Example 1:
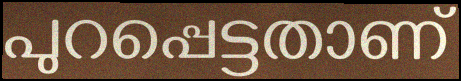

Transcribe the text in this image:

പുറപ്പെട്ടതാണ്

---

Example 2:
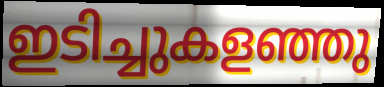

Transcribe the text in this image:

ഇടിച്ചുകളഞ്ഞു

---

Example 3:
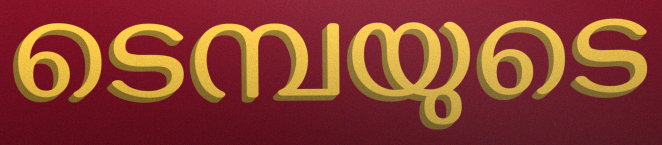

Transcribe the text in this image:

ടെമ്പയുടെ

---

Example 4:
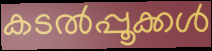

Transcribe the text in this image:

കടൽപ്പൂക്കൾ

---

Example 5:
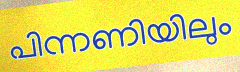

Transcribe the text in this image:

പിന്നണിയിലും